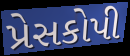
પ્રેસકોપી